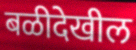
बळीदेखील